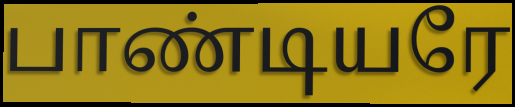
பாண்டியரே